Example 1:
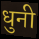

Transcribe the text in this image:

धुनी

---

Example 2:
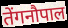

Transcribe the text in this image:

तेंगनौपाल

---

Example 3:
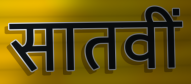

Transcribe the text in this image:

सातवीं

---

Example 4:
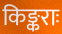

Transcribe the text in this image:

किङ्कराः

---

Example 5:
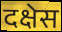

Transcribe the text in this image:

दक्षेस